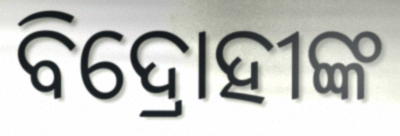
ବିଦ୍ରୋହୀଙ୍କ